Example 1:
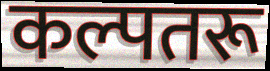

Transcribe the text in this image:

कल्पतरू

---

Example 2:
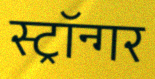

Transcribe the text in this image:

स्ट्रॉन्गर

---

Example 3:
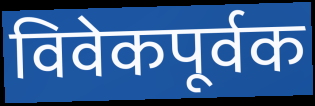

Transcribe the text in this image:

विवेकपूर्वक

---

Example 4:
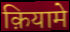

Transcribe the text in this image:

क़ियामे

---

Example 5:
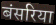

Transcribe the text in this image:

बंसरिया